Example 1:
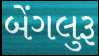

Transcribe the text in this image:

બેંગલુરૂ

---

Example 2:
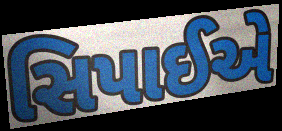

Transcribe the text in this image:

સિપાઈએ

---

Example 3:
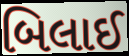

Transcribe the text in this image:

બિલાઈ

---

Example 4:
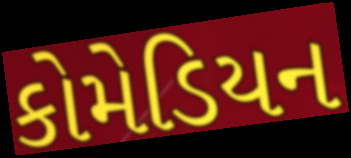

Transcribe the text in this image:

કોમેડિયન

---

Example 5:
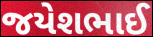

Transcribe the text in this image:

જયેશભાઈ